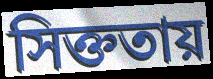
সিক্ততায়